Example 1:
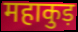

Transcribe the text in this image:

महाकुड़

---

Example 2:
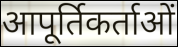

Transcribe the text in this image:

आपूर्तिकर्ताओं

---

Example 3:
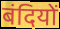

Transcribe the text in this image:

बंदियों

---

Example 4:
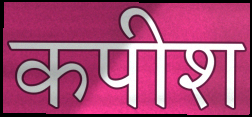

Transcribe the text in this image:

कपीश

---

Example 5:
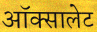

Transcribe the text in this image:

ऑक्सालेट